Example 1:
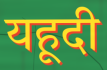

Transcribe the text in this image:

यहूदी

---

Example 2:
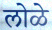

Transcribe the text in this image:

लोळे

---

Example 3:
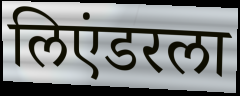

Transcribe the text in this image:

लिएंडरला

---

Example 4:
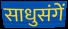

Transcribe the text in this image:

साधुसंगें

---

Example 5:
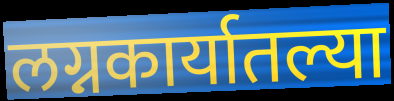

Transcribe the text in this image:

लग्नकार्यातल्या